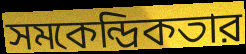
সমকেন্দ্রিকতার